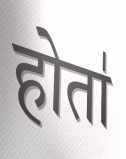
होता॑